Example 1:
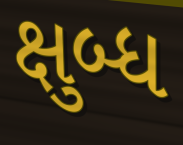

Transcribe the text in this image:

ક્ષુબ્ધ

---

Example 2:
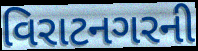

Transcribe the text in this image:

વિરાટનગરની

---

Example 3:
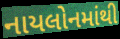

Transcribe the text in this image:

નાયલોનમાંથી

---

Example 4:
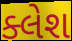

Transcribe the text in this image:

ક્લેશ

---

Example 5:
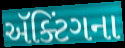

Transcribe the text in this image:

ઍક્ટિંગના